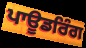
ਪਾਊਡਰਿੰਗ